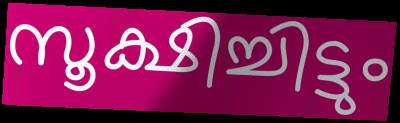
സൂക്ഷിച്ചിട്ടും